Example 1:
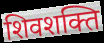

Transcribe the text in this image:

शिवशक्ति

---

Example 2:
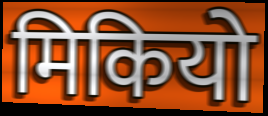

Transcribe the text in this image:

मिकियो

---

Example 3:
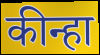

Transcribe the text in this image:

कीन्हा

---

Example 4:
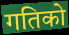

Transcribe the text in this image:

गतिको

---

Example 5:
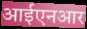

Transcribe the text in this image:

आईएनआर